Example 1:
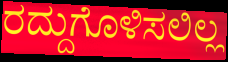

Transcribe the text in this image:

ರದ್ದುಗೊಳಿಸಲಿಲ್ಲ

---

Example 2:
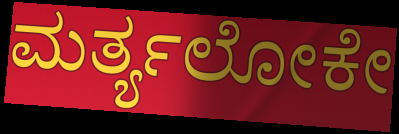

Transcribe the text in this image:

ಮರ್ತ್ಯಲೋಕೇ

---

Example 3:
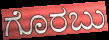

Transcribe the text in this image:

ಗೊರಬು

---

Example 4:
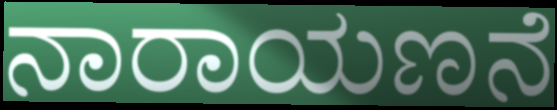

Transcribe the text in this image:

ನಾರಾಯಣನೆ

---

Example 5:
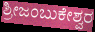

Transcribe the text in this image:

ಶ್ರೀಜಂಬುಕೇಶ್ವರ